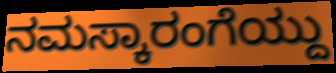
ನಮಸ್ಕಾರಂಗೆಯ್ದು